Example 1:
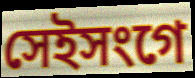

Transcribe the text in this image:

সেইসংগে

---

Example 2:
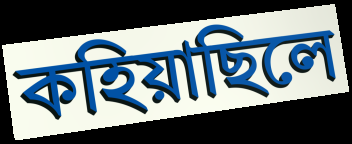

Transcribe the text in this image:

কহিয়াছিলে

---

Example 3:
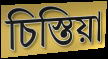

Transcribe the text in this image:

চিস্তিয়া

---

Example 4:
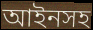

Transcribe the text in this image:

আইনসহ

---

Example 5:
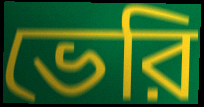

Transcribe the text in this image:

ভেরি